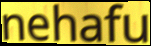
nehafu